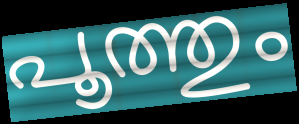
പൂത്തും